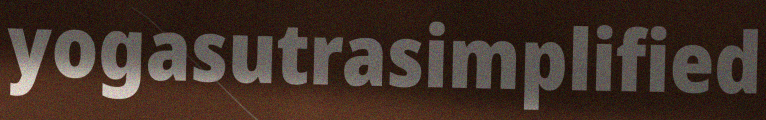
yogasutrasimplified